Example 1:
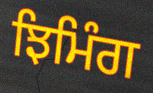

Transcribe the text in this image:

ਝਿਮਿੰਗ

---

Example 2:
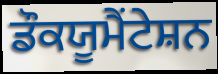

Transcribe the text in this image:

ਡੌਕਯੂਮੈਂਟੇਸ਼ਨ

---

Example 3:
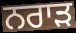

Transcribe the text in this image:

ਨਰਾੜ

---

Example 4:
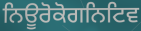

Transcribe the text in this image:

ਨਿਊਰੋਕੋਗਨਿਟਿਵ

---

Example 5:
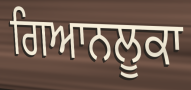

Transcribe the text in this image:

ਗਿਆਨਲੂਕਾ